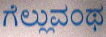
ಗೆಲ್ಲುವಂಥ